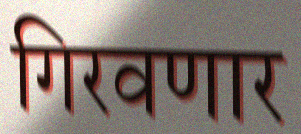
गिरवणार